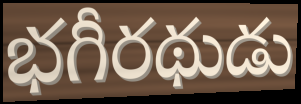
భగీరథుడు